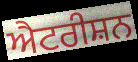
ਐਟਰੀਸ਼ਨ